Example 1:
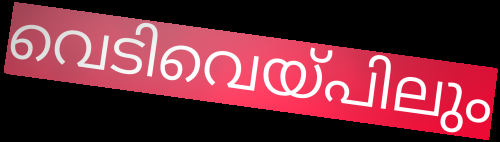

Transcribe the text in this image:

വെടിവെയ്പിലും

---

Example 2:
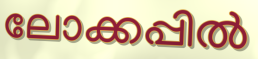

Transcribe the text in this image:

ലോക്കപ്പിൽ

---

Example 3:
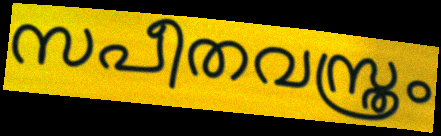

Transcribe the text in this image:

സപീതവസ്ത്രം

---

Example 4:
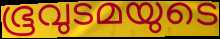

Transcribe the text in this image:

ഭൂവുടമയുടെ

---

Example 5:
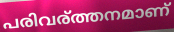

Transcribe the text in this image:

പരിവര്ത്തനമാണ്